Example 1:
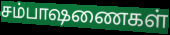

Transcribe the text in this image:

சம்பாஷணைகள்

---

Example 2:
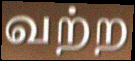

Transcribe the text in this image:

வற்ற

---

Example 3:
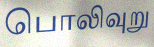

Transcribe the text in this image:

பொலிவுறு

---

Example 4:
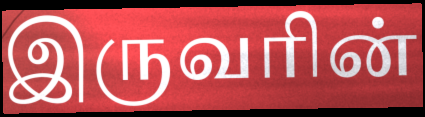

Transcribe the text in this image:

இருவரின்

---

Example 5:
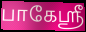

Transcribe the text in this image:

பாகேஸ்ரீ